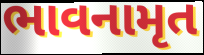
ભાવનામૃત